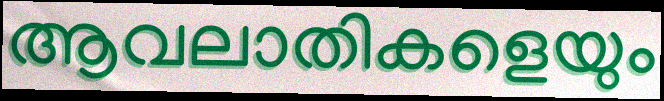
ആവലാതികളെയും